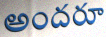
అందరూ